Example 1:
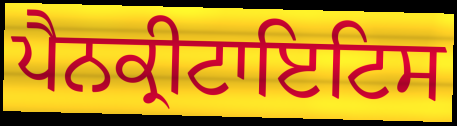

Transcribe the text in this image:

ਪੈਨਕ੍ਰੀਟਾਇਟਿਸ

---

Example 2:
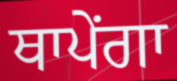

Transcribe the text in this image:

ਥਾਪੇਂਗਾ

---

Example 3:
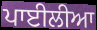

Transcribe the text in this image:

ਪਾਈਲੀਆ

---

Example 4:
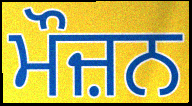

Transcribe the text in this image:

ਮੌਜ਼ਨ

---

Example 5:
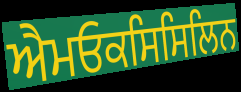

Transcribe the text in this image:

ਐਮਓਕਸਿਸਿਲਿਨ